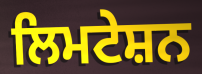
ਲਿਮਟੇਸ਼ਨ